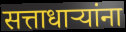
सत्ताधाऱ्यांना